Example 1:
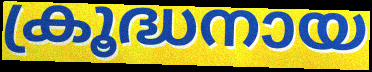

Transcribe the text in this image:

ക്രൂദ്ധനായ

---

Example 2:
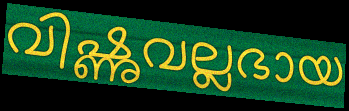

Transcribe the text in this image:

വിഷ്ണുവല്ലഭായ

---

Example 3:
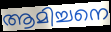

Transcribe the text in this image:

ആമിച്ചനെ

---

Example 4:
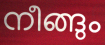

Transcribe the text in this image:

നീങ്ങും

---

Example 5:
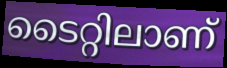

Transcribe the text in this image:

ടൈറ്റിലാണ്